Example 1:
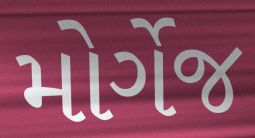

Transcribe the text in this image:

મોર્ગેજ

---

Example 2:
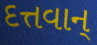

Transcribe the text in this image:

દત્તવાન્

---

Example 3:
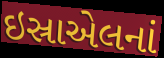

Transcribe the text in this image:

ઇસ્રાએલનાં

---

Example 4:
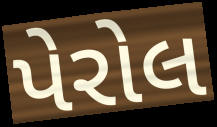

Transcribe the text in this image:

પેરોલ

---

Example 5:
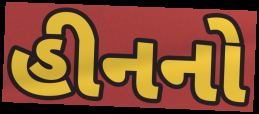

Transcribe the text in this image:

હીનનો